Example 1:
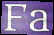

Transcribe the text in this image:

Fa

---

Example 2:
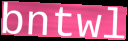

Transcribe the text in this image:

bntwl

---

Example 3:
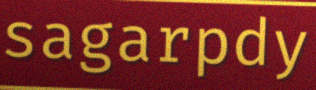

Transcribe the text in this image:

sagarpdy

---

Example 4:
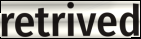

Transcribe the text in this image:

retrived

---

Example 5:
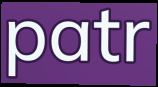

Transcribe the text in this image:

patr